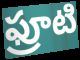
ఫ్రూటి